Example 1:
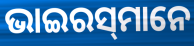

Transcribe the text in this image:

ଭାଇରସ୍‌ମାନେ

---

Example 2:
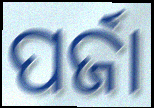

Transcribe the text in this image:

ପର୍ଜା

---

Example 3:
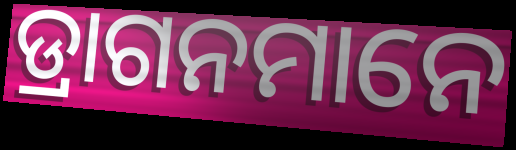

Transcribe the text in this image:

ଡ୍ରାଗନମାନେ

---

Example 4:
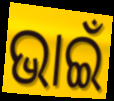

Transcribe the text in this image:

ଭାଇଁ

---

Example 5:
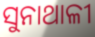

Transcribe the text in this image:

ସୁନାଥାଳୀ